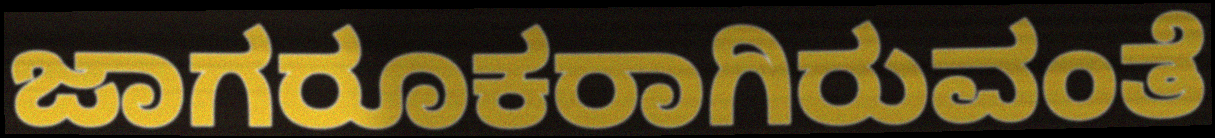
ಜಾಗರೂಕರಾಗಿರುವಂತೆ